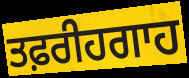
ਤਫ਼ਰੀਹਗਾਹ